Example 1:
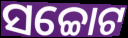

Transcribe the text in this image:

ସଚ୍ଚୋଟ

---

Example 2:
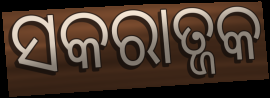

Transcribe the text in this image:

ସକରାତ୍ଜକ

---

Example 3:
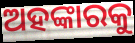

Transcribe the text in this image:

ଅହଙ୍କାରକୁ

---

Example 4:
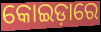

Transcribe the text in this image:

କୋଇଡ଼ାରେ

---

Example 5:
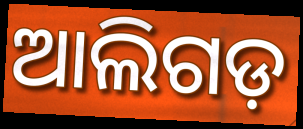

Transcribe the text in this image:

ଆଲିଗଡ଼